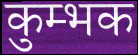
कुम्भक